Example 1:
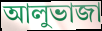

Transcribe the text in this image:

আলুভাজা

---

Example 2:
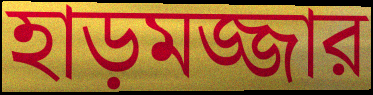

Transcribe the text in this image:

হাড়মজ্জার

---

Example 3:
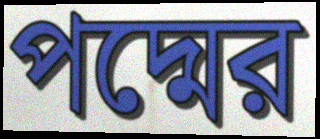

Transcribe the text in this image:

পদ্মের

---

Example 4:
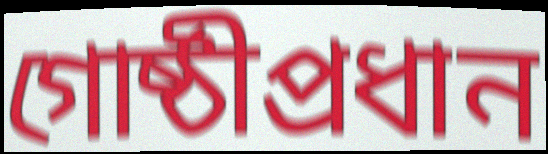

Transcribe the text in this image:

গোষ্ঠীপ্রধান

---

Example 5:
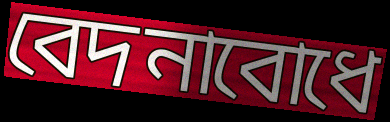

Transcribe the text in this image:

বেদনাবোধে